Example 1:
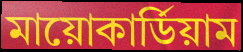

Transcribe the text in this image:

মায়োকার্ডিয়াম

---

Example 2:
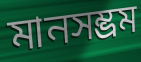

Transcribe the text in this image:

মানসম্ভ্রম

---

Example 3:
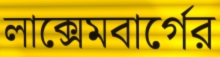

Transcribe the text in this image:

লাক্সেমবার্গের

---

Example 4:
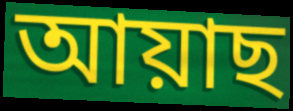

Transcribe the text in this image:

আয়াছ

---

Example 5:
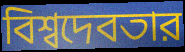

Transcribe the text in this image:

বিশ্বদেবতার